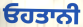
ਓਹਤਾਨੀ